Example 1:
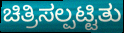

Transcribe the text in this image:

ಚಿತ್ರಿಸಲ್ಪಟ್ಟಿತು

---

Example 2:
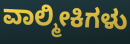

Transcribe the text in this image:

ವಾಲ್ಮೀಕಿಗಳು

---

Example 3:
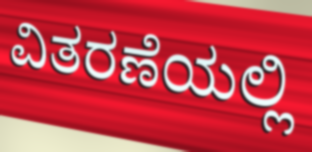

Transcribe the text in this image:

ವಿತರಣೆಯಲ್ಲಿ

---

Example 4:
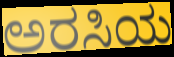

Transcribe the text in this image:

ಅರಸಿಯ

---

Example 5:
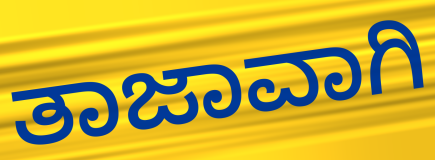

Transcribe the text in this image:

ತಾಜಾವಾಗಿ